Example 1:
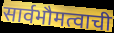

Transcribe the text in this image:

सार्वभौमत्वाची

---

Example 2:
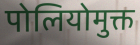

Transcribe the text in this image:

पोलियोमुक्त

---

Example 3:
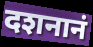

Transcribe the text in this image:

दशनानं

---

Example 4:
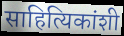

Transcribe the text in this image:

साहित्यिकांशी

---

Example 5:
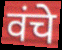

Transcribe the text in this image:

वंचे